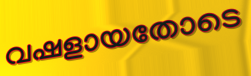
വഷളായതോടെ